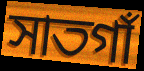
সাতগাঁ